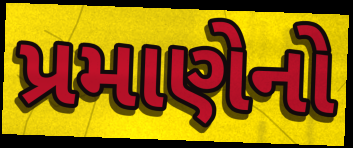
પ્રમાણેનો